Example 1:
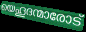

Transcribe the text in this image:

യെഹൂദന്മാരോട്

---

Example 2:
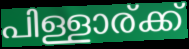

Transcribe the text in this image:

പിള്ളാര്ക്ക്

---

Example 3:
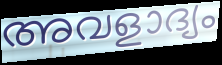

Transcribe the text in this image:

അവളാദ്യം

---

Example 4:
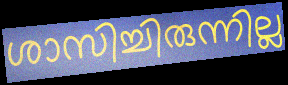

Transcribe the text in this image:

ശാസിച്ചിരുന്നില്ല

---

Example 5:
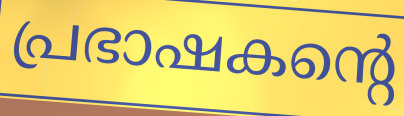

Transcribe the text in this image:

പ്രഭാഷകന്റെ